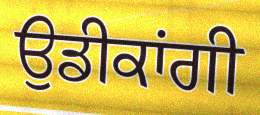
ਉਡੀਕਾਂਗੀ